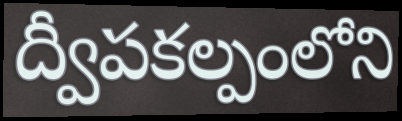
ద్వీపకల్పంలోని